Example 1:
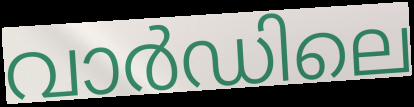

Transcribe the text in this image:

വാർഡിലെ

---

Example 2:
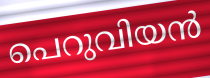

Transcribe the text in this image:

പെറുവിയൻ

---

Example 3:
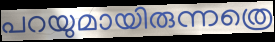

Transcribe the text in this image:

പറയുമായിരുന്നത്രെ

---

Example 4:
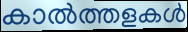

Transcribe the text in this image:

കാൽത്തളകൾ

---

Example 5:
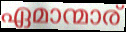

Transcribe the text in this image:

ഏമാന്മാര്